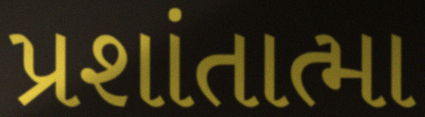
પ્રશાંતાત્મા